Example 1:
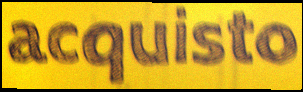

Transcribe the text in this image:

acquisto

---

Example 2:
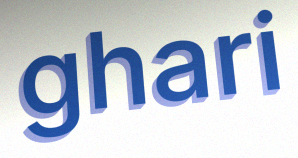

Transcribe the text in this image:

ghari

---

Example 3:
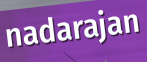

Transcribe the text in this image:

nadarajan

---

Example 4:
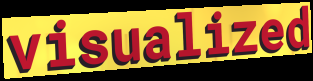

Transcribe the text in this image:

visualized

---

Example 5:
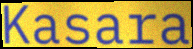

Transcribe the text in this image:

Kasara